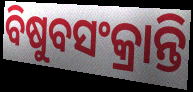
ବିଷୁବସଂକ୍ରାନ୍ତି